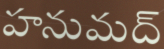
హనుమద్